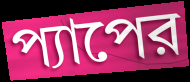
প্যাপের